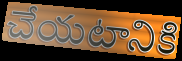
చేయటానికి